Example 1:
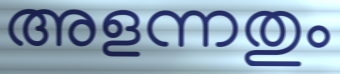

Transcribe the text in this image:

അളന്നതും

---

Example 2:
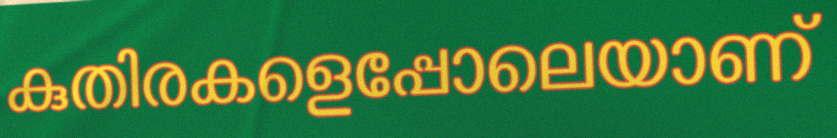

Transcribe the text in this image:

കുതിരകളെപ്പോലെയാണ്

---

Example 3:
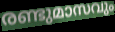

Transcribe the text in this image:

രണ്ടുമാസവും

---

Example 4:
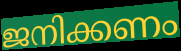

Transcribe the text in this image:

ജനിക്കണം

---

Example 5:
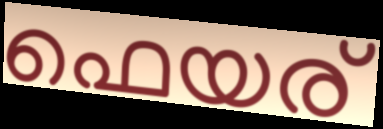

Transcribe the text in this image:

ഫെയര്